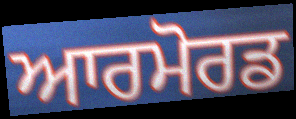
ਆਰਮੋਰਡ